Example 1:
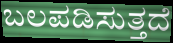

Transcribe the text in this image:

ಬಲಪಡಿಸುತ್ತದೆ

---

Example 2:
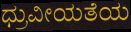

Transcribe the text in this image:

ಧ್ರುವೀಯತೆಯ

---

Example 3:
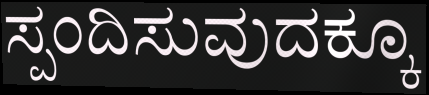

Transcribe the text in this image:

ಸ್ಪಂದಿಸುವುದಕ್ಕೂ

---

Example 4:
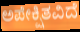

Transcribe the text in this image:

ಅಪೇಕ್ಷಿತವಿದೆ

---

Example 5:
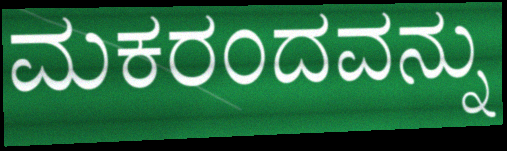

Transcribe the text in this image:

ಮಕರಂದವನ್ನು